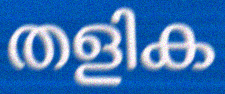
തളിക